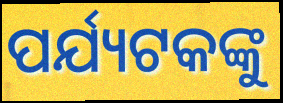
ପର୍ଯ୍ୟଟକଙ୍କୁ